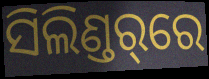
ସିଲିଣ୍ଡର୍‌ରେ